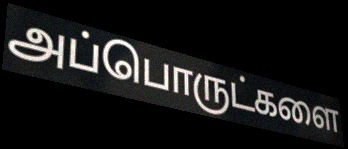
அப்பொருட்களை